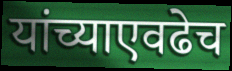
यांच्याएवढेच